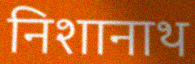
निशानाथ